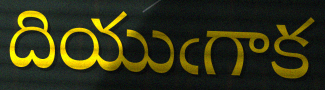
దియుఁగాక